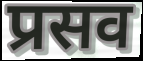
प्रसव